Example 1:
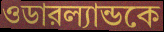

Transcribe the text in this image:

ওডারল্যান্ডকে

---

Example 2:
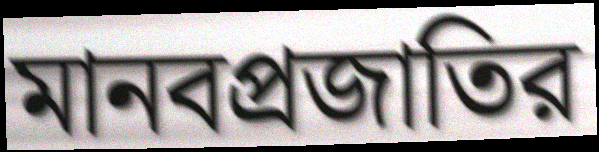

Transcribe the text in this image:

মানবপ্রজাতির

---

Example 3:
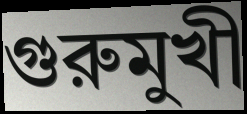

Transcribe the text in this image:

গুরুমুখী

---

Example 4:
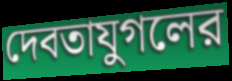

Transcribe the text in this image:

দেবতাযুগলের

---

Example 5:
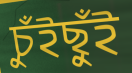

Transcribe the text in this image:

চুঁইছুঁই